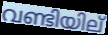
വണ്ടിയില്